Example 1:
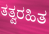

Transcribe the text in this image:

ತತ್ವರಹಿತ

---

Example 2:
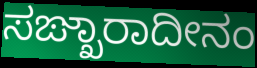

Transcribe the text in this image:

ಸಙ್ಖಾರಾದೀನಂ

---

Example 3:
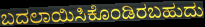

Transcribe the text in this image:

ಬದಲಾಯಿಸಿಕೊಂಡಿರಬಹುದು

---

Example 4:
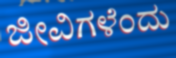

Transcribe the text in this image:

ಜೀವಿಗಳೆಂದು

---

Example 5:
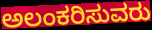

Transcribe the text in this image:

ಅಲಂಕರಿಸುವರು